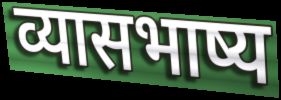
व्यासभाष्य